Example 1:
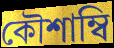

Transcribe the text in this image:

কৌশাম্বি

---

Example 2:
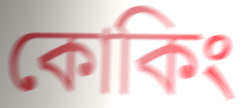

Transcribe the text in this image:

কোকিং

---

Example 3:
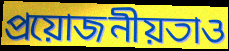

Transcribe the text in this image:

প্রয়োজনীয়তাও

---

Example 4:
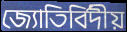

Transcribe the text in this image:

জ্যোতির্বিদীয়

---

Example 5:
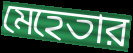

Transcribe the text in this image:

মেহেতার